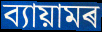
ব্যায়ামৰ